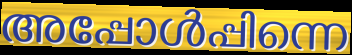
അപ്പോൾപ്പിന്നെ